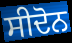
ਸੀਦੋਨ